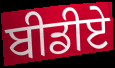
ਬੀਡੀਏ